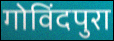
गोविंदपुरा